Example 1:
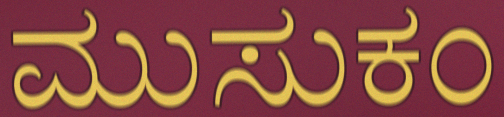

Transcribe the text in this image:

ಮುಸುಕಂ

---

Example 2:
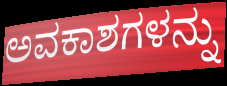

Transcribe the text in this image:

ಅವಕಾಶಗಳನ್ನು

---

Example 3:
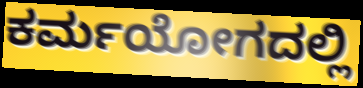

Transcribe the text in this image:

ಕರ್ಮಯೋಗದಲ್ಲಿ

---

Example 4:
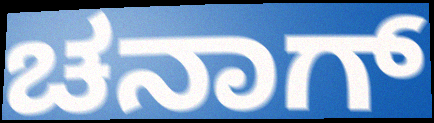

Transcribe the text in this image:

ಚನಾಗ್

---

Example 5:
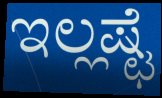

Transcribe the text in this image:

ಇಲ್ಲಷ್ಟೆ